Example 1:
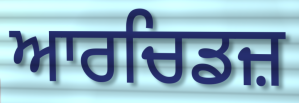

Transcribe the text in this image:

ਆਰਚਿਡਜ਼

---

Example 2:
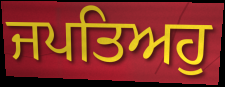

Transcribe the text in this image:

ਜਪਤਿਅਹੁ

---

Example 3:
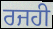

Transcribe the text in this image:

ਰਜਹੀ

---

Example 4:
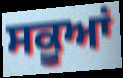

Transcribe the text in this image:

ਸਕੂਆਂ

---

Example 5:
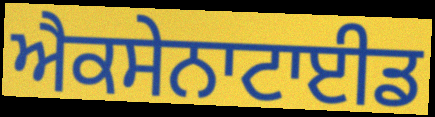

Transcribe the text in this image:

ਐਕਸੇਨਾਟਾਈਡ